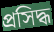
প্ৰসিদ্ধ